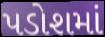
પડોશમાં